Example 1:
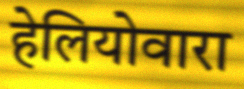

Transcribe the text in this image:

हेलियोवारा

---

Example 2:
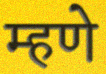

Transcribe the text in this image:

म्हणे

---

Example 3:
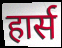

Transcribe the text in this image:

हार्स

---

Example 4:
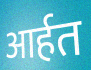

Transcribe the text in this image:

आर्हत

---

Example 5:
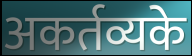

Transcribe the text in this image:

अकर्तव्यके